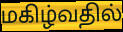
மகிழ்வதில்